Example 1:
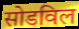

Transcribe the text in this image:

सोडविल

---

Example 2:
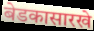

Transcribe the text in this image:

बेडकासारखे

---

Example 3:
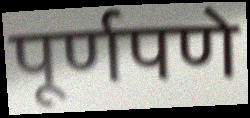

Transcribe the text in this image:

पूर्णपणे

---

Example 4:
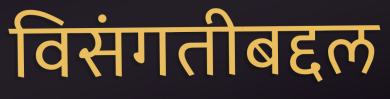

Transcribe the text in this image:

विसंगतीबद्दल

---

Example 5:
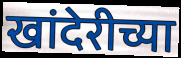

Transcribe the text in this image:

खांदेरीच्या